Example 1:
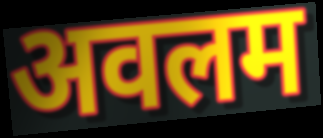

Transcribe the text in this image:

अवलम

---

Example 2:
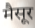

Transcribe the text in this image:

मैसूर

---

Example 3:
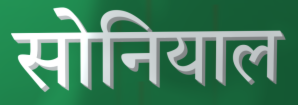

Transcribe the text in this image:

सोनियाल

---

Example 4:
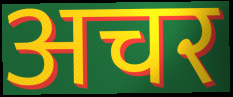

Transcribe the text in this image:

अचर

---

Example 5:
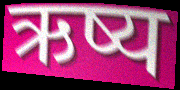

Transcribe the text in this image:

ऋष्य